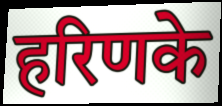
हरिणके